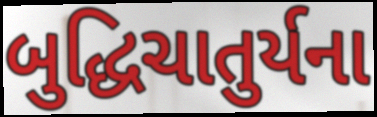
બુદ્ધિચાતુર્યના